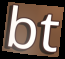
bt